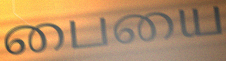
பையை